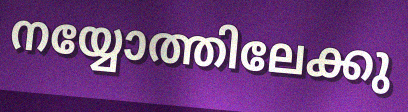
നയ്യോത്തിലേക്കു